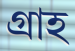
গ্রাহ